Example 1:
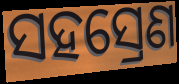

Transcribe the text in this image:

ସହସ୍ରେଣ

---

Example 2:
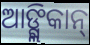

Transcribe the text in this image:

ଆଙ୍ଗ୍ଲିକାନ୍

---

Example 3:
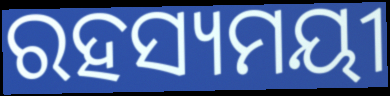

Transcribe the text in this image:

ରହସ୍ୟମୟୀ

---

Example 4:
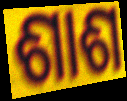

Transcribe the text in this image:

ଶାଶ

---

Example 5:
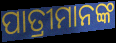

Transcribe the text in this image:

ପାତ୍ରୀମାନଙ୍କ